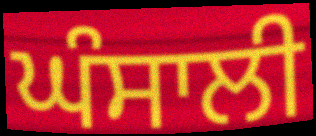
ਘੰਸਾਲੀ